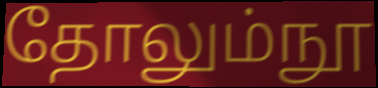
தோலும்நூ